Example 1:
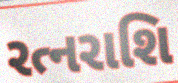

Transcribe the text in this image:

રત્નરાશિ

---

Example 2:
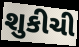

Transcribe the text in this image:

શુકીચી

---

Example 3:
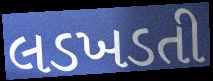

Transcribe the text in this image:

લડખડતી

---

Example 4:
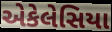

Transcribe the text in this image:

એકેલેસિયા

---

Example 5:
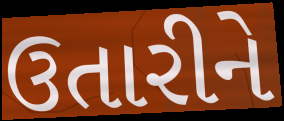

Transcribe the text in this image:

ઉતારીને